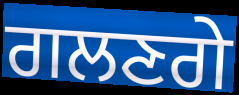
ਗਲਣਗੇ